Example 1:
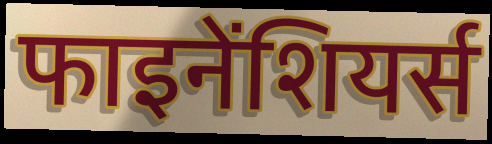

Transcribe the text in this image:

फाइनेंशियर्स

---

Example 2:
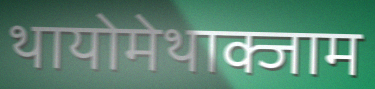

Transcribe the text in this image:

थायोमेथाक्जाम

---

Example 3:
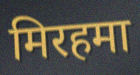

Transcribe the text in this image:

मिरहमा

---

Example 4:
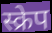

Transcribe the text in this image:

स्क्रेप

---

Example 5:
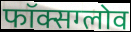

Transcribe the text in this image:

फॉक्सग्लोव